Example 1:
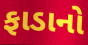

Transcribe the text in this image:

ફાડાનો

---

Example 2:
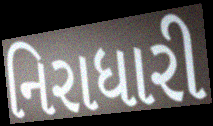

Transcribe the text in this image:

નિરાધારી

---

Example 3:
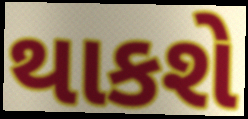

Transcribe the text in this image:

થાકશે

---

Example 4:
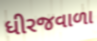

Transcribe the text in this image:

ધીરજવાળા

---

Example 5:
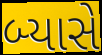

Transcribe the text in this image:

બ્યાસે